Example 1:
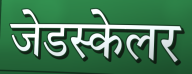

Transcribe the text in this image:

जेडस्केलर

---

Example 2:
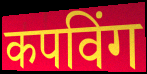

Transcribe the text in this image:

कपविंग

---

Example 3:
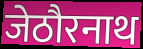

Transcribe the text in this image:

जेठौरनाथ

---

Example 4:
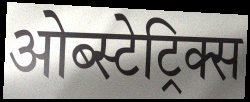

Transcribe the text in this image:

ओब्स्टेट्रिक्स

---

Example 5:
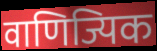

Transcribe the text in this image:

वाणिज्यिक